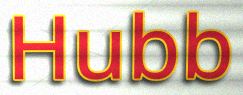
Hubb